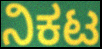
ನಿಕಟ